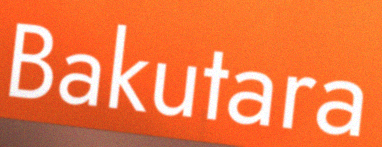
Bakutara